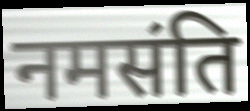
नमसंति